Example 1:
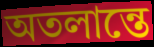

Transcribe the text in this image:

অতলান্তে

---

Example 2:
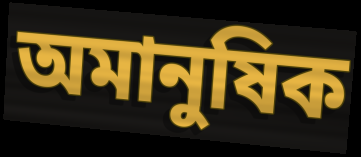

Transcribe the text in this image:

অমানুষিক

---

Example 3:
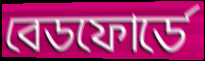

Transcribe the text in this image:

বেডফোর্ডে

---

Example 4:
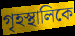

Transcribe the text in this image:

গৃহস্থালিকে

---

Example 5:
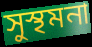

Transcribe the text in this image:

সুস্থমনা